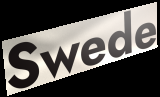
Swede